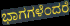
ಭಾಗಗಳೆಂದರೆ